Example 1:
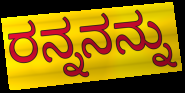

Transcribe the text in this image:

ರನ್ನನನ್ನು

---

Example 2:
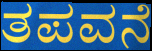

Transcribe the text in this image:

ತಪವನೆ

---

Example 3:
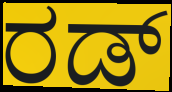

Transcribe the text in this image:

ರಡ್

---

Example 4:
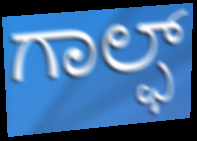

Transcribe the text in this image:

ಗಾಲ್ಫ್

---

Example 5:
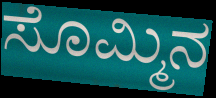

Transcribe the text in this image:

ಸೊಮ್ಮಿನ